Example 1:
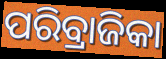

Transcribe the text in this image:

ପରିବ୍ରାଜିକା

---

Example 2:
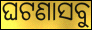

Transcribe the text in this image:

ଘଟଣାସବୁ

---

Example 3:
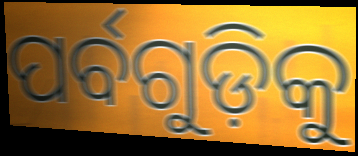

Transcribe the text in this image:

ପର୍ବଗୁଡ଼ିକୁ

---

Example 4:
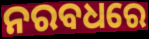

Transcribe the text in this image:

ନରବଧରେ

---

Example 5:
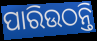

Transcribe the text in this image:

ପାରିଉଠନ୍ତି